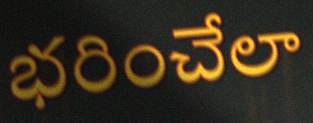
భరించేలా